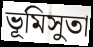
ভূমিসুতা